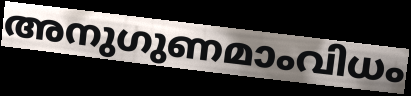
അനുഗുണമാംവിധം